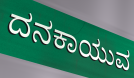
ದನಕಾಯುವ